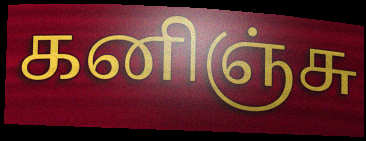
கனிஞ்சு